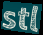
stl